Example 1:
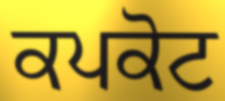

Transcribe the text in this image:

ਕਪਕੋਟ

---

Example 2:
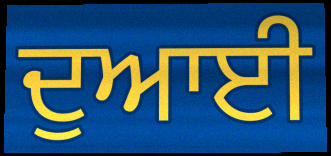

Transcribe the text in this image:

ਦੁਆਈ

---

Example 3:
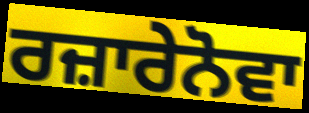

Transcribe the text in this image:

ਰਜ਼ਾਰੇਨੋਵਾ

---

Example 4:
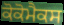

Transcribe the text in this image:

ਕੋਕੋਮੈਕਸ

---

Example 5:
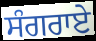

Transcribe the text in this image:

ਸੰਗਰਾਏ